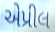
એપ્રીલ